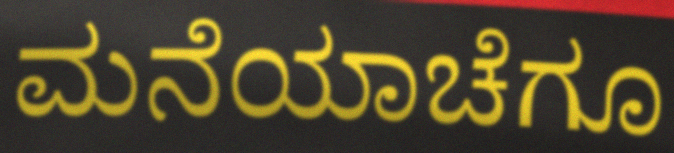
ಮನೆಯಾಚೆಗೂ